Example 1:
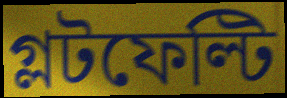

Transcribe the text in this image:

গ্লটফেল্টি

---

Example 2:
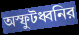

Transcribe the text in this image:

অস্ফুটধ্বনির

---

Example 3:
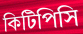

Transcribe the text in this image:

কিটিপিসি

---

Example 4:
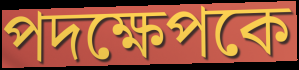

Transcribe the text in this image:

পদক্ষেপকে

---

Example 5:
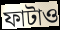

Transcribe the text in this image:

ফাটাও